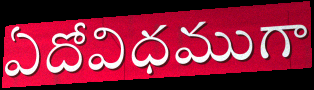
ఏదోవిధముగా